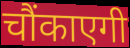
चौंकाएगी